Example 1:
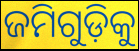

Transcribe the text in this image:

ଜମିଗୁଡ଼ିକୁ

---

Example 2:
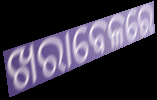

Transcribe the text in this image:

ଖରାବେଳରେ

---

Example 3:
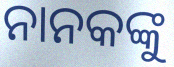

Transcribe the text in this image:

ନାନକଙ୍କୁ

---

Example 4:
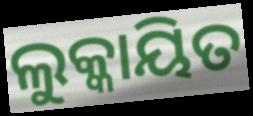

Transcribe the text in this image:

ଲୁକ୍କାୟିତ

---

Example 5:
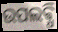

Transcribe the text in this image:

ଉପଲଵ୍ଧି